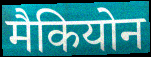
मैकियोन